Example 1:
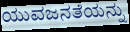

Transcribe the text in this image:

ಯುವಜನತೆಯನ್ನು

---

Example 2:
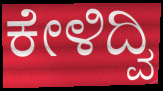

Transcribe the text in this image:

ಕೇಳಿದ್ವಿ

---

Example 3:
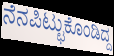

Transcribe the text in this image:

ನೆನಪಿಟ್ಟುಕೊಂಡಿದ್ದ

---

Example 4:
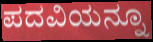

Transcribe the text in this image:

ಪದವಿಯನ್ನೂ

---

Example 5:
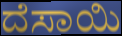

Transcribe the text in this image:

ದೆಸಾಯಿ